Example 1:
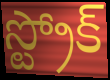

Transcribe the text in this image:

స్ట్రోక్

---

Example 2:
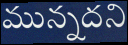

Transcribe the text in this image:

మున్నదని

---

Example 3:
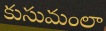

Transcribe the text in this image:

కుసుమంలా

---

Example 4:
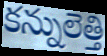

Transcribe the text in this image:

కన్నులెత్తి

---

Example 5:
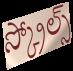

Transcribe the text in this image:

స్క్రోల్స్